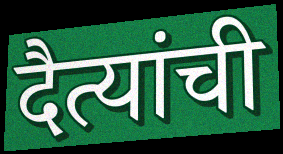
दैत्यांची